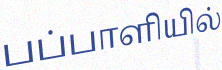
பப்பாளியில்